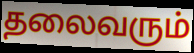
தலைவரும்